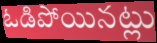
ఓడిపోయినట్లు